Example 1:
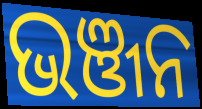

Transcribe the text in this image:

ଭଞ୍ଜନ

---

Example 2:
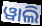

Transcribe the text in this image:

ୱାଲି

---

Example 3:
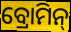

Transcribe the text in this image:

ବ୍ରୋମିନ୍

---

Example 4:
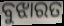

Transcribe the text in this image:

ବୁଝାରତ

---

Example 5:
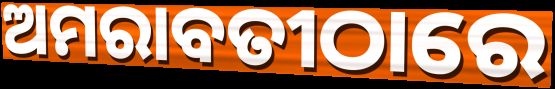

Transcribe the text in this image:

ଅମରାବତୀଠାରେ